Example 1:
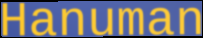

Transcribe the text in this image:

Hanuman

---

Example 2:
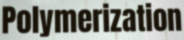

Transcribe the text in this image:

Polymerization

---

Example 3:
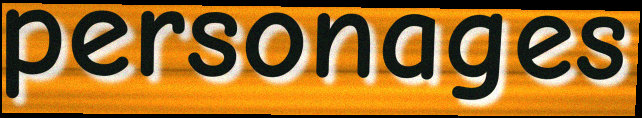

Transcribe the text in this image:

personages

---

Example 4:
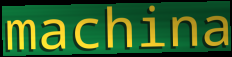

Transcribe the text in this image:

machina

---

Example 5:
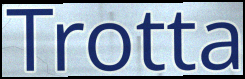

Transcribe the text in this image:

Trotta